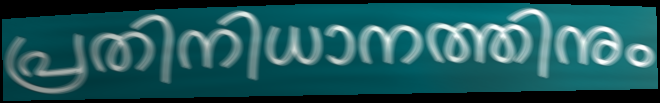
പ്രതിനിധാനത്തിനും